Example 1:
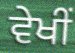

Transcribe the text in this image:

ਵੇਖੀਂ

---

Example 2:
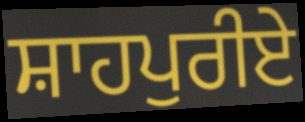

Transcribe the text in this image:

ਸ਼ਾਹਪੁਰੀਏ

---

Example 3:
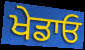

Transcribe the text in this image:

ਖੇਡਾਓ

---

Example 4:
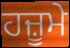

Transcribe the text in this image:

ਹਜ਼ੂਮੇ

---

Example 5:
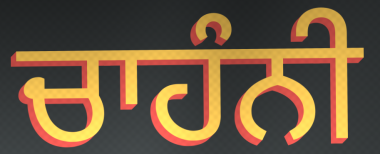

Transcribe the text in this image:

ਚਾਹੰਨੀ